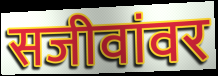
सजीवांवर